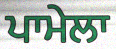
ਪਾਮੇਲਾ